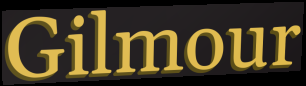
Gilmour